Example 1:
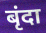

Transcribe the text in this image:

बृंदा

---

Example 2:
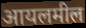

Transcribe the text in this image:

आयलमील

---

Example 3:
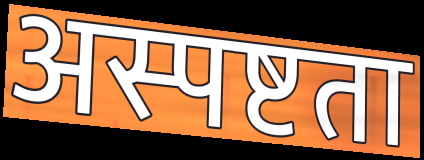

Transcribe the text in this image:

अस्पष्टता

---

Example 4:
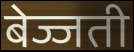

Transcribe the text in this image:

बेज्जती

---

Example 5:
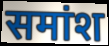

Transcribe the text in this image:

समांश